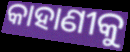
କାହାଣୀକୁ